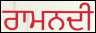
ਰਾਮਨਦੀ